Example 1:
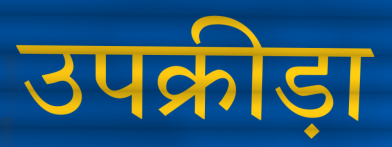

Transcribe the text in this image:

उपक्रीड़ा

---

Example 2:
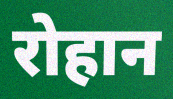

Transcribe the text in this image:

रोहान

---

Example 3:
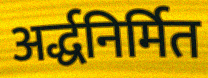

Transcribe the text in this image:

अर्द्धनिर्मित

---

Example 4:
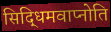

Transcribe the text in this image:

सिद्धिमवाप्नोति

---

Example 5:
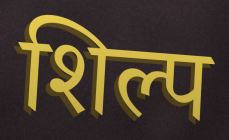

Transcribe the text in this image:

शिल्प